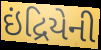
ઇંદ્રિયેની